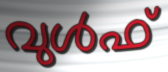
വുൾഫ്